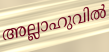
അല്ലാഹുവിൽ